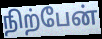
நிற்பேன்